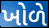
ખોળે